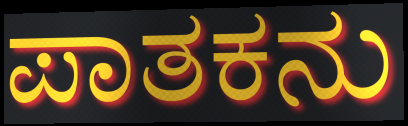
ಪಾತಕನು